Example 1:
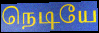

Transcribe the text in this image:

நெடியே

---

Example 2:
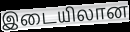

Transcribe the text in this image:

இடையிலான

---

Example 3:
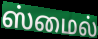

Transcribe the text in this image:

ஸ்மைல்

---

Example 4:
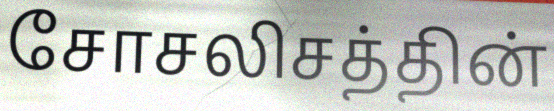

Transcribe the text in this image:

சோசலிசத்தின்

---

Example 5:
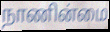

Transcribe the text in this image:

நாணின்மை